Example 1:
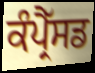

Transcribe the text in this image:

ਕੰਪ੍ਰੈੱਸਡ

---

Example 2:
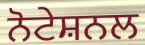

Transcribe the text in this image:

ਨੋਟੇਸ਼ਨਲ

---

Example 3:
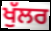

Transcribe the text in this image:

ਖੁੱਲਰ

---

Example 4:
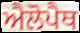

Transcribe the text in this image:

ਐਲੋਪੈਥ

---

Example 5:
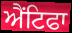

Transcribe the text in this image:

ਐਂਟਿਫਾ